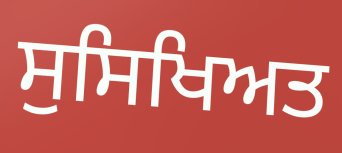
ਸੁਸਿਖਿਅਤ